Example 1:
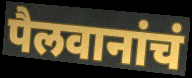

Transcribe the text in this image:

पैलवानांचं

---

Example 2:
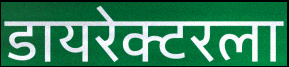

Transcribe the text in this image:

डायरेक्टरला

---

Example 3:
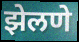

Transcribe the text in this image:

झेलणे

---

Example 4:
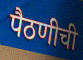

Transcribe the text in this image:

पैठणीची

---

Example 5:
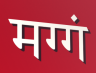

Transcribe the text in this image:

मग्गं